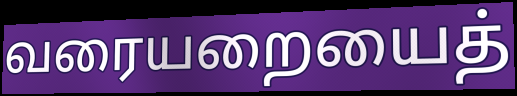
வரையறையைத்